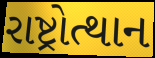
રાષ્ટ્રોત્થાન